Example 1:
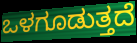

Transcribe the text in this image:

ಒಳಗೂಡುತ್ತದೆ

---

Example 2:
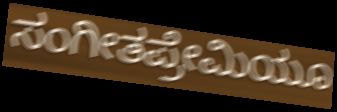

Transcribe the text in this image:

ಸಂಗೀತಪ್ರೇಮಿಯೂ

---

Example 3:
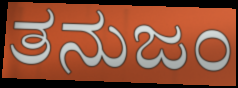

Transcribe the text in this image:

ತನುಜಂ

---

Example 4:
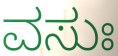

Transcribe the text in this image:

ವಸುಃ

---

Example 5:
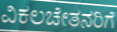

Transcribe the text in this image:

ವಿಕಲಚೇತನರಿಗೆ